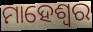
ମାହେଶ୍ଵର